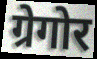
ग्रेगोर